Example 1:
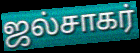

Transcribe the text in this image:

ஜல்சாகர்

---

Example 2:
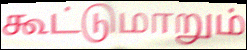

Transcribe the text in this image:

கூட்டுமாறும்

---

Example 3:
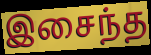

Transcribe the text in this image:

இசைந்த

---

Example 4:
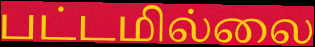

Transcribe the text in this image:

பட்டமில்லை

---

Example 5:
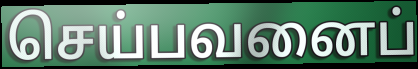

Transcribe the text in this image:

செய்பவனைப்